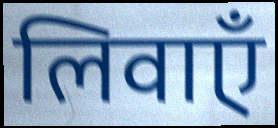
लिवाएँ